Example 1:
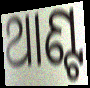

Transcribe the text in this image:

ଥାଣ୍ଟ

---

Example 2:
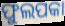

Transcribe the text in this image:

ଫୁଲପକା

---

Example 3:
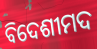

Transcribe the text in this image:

ବିଦେଶୀମଦ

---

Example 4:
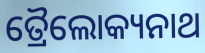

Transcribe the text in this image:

ତ୍ରୈଲୋକ୍ୟନାଥ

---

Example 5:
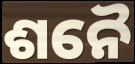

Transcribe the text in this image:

ଶନୈ